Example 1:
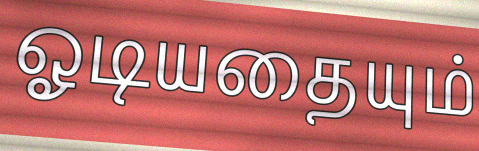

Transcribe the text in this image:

ஓடியதையும்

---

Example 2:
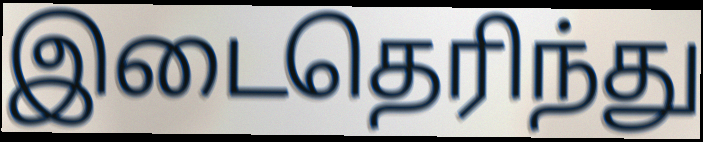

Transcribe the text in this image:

இடைதெரிந்து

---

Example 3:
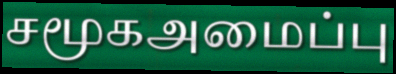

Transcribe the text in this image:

சமூகஅமைப்பு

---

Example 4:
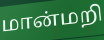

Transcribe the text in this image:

மான்மறி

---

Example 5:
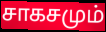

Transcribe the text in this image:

சாகசமும்